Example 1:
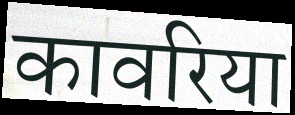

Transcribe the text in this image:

कावरिया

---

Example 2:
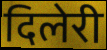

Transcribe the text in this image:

दिलेरी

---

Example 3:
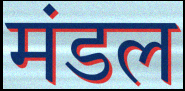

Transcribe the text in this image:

मंडल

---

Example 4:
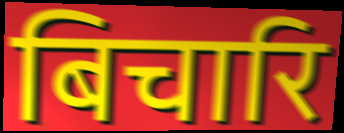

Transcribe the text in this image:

बिचारि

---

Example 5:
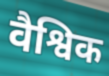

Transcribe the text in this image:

वैश्विक